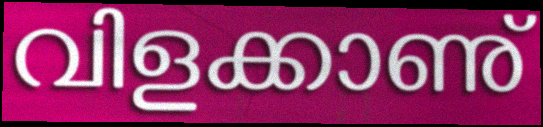
വിളക്കാണു്